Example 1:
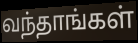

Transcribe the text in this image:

வந்தாங்கள்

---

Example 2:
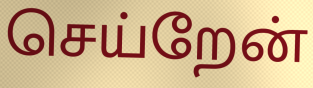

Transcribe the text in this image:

செய்றேன்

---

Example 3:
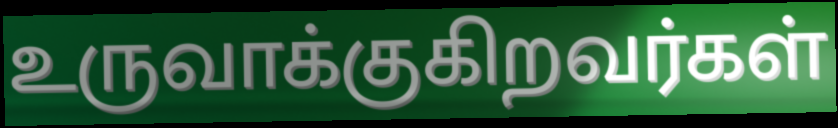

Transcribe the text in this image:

உருவாக்குகிறவர்கள்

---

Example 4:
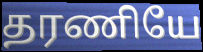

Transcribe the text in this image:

தரணியே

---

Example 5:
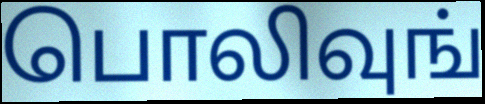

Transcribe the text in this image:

பொலிவுங்